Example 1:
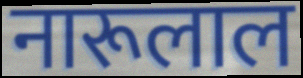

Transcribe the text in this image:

नारूलाल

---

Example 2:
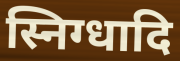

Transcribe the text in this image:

स्निग्धादि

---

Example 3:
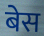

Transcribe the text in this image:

बेस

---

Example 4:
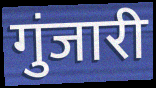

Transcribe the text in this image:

गुंजारी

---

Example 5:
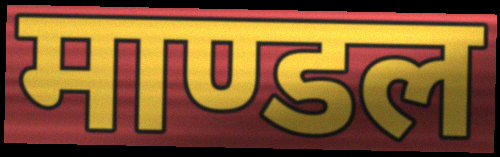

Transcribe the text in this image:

माण्डल